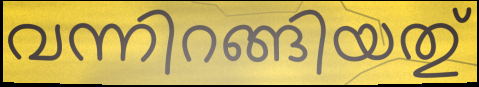
വന്നിറങ്ങിയതു്